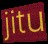
jitu